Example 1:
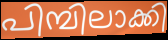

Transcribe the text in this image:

പിമ്പിലാക്കി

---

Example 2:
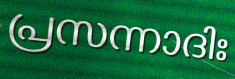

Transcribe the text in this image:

പ്രസന്നാദിഃ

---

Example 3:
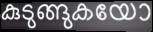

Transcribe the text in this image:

കുടുങ്ങുകയോ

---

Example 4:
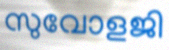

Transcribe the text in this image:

സുവോളജി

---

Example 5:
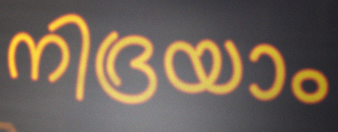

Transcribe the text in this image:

നിദ്രയാം